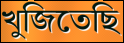
খুজিতেছি